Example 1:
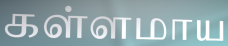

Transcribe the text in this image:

கள்ளமாய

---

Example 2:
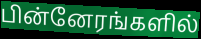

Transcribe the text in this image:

பின்னேரங்களில்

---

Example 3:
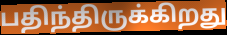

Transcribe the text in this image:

பதிந்திருக்கிறது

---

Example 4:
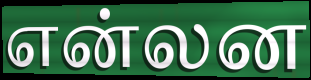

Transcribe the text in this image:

என்லன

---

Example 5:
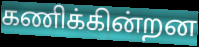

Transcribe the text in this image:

கணிக்கின்றன